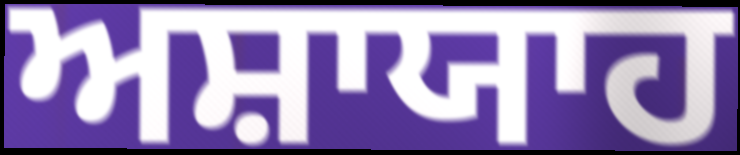
ਅਸ਼ਾਯਾਹ